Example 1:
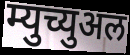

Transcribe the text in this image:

म्युच्युअल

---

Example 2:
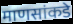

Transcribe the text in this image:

माणसांकडे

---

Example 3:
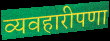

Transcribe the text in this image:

व्यवहारीपणा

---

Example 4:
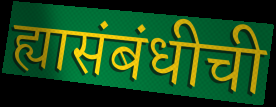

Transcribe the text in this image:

ह्यासंबंधीची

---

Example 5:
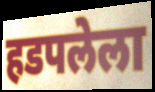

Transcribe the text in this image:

हडपलेला